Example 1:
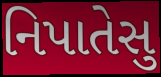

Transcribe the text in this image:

નિપાતેસુ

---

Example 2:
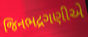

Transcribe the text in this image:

જિનભદ્રગણીએ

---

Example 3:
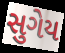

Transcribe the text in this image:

સુગેય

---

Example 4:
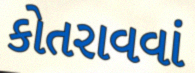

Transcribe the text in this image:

કોતરાવવાં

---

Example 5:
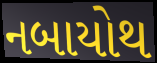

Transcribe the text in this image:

નબાયોથ